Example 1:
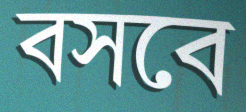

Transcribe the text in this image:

বসবে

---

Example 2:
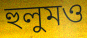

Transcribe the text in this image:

হুলুমও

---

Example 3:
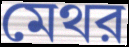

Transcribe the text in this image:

মেথর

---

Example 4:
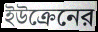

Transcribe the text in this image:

ইউক্রেনের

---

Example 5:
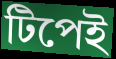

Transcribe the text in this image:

টিপেই